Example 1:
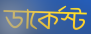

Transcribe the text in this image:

ডার্কেস্ট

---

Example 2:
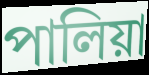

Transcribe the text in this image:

পালিয়া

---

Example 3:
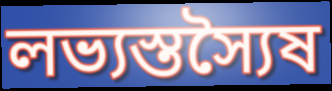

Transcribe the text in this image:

লভ্যস্তস্যৈষ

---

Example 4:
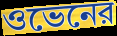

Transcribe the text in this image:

ওভেনের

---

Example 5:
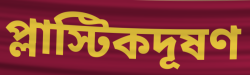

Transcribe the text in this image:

প্লাস্টিকদূষণ